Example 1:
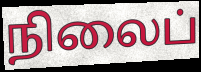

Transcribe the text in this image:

நிலைப்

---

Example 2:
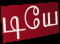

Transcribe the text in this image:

டியே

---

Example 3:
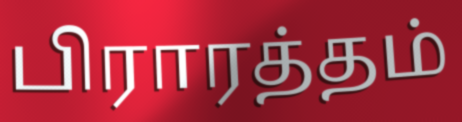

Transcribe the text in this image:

பிராரத்தம்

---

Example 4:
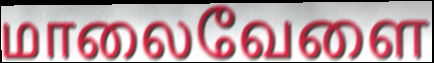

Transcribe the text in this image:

மாலைவேளை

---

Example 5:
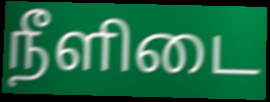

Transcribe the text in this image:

நீளிடை